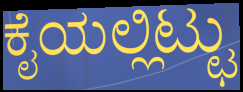
ಕೈಯಲ್ಲಿಟ್ಟು